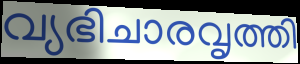
വ്യഭിചാരവൃത്തി